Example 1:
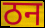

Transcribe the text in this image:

ठन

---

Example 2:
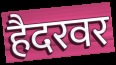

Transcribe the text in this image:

हैदरवर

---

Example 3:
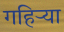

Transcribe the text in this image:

गहिर्‍या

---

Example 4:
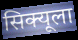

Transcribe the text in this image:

सिक्यूला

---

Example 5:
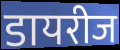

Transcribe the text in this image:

डायरीज